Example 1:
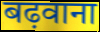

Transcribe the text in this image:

बढ़वाना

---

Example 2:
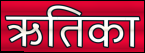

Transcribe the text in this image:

ऋतिका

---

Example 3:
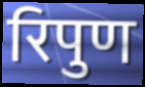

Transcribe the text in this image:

रिपुण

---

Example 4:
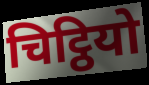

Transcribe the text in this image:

चिट्ठियो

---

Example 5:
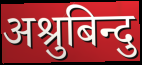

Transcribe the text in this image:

अश्रुबिन्दु